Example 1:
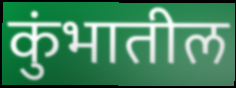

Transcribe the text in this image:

कुंभातील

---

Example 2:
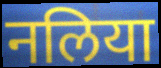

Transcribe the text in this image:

नलिया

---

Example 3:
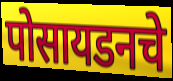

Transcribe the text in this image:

पोसायडनचे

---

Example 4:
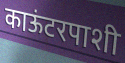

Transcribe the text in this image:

काऊंटरपाशी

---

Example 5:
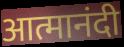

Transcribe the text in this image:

आत्मानंदी